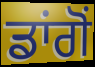
ਡਾਂਗੋਂ